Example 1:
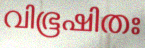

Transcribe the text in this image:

വിഭൂഷിതഃ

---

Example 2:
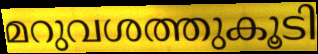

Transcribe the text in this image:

മറുവശത്തുകൂടി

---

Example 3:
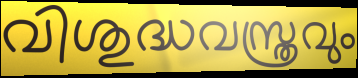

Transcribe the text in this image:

വിശുദ്ധവസ്ത്രവും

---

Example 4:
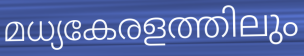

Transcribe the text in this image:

മധ്യകേരളത്തിലും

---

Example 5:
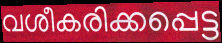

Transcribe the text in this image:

വശീകരിക്കപ്പെട്ട